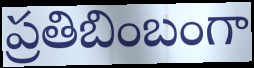
ప్రతిబింబంగా